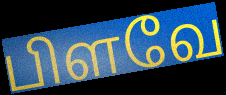
பிளவே